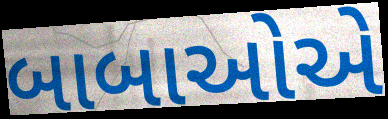
બાબાઓએ